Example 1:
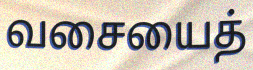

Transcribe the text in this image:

வசையைத்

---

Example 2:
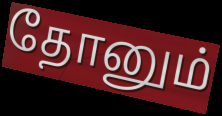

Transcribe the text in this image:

தோனும்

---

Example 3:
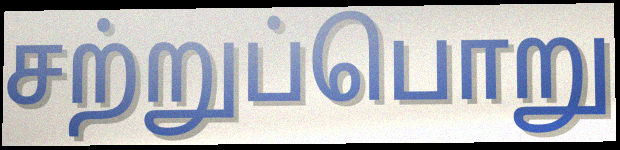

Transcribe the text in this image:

சற்றுப்பொறு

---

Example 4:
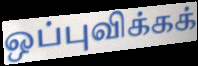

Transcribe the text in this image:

ஒப்புவிக்கக்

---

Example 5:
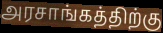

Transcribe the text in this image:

அரசாங்கத்திற்கு